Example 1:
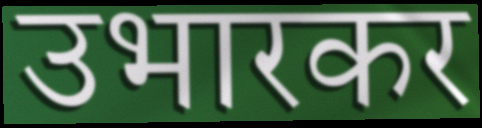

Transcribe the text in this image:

उभारकर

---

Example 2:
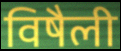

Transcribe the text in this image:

विषैली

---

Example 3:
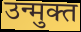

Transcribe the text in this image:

उन्मुक्त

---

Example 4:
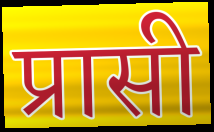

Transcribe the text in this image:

प्रासी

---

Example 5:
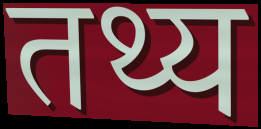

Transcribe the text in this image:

तथ्य